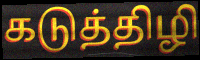
கடுத்திழி